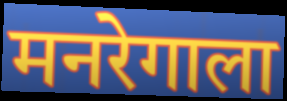
मनरेगाला